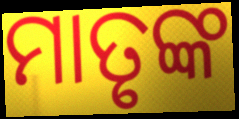
ମାତୃଙ୍କ